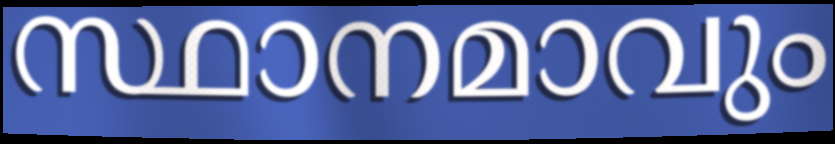
സ്ഥാനമാവും